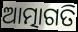
ଆତ୍ମାଗତି